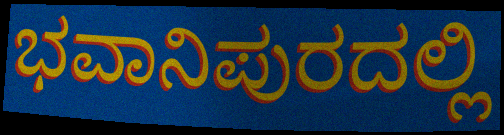
ಭವಾನಿಪುರದಲ್ಲಿ